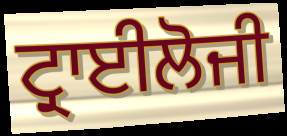
ਟ੍ਰਾਈਲੋਜੀ